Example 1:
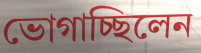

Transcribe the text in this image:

ভোগাচ্ছিলেন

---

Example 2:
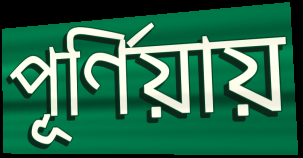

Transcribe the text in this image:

পূর্ণিয়ায়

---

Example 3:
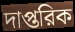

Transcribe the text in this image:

দাপ্তরিক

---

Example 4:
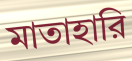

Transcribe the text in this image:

মাতাহারি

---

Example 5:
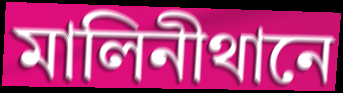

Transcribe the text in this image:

মালিনীথানে